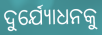
ଦୁର୍ଯ୍ୟୋଧନକୁ